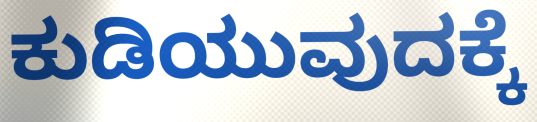
ಕುಡಿಯುವುದಕ್ಕೆ